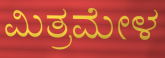
ಮಿತ್ರಮೇಳ